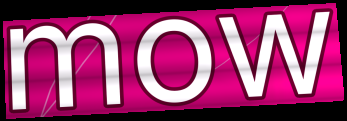
mow